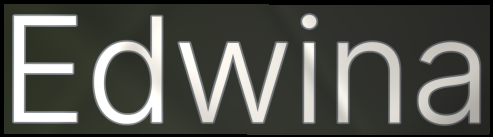
Edwina